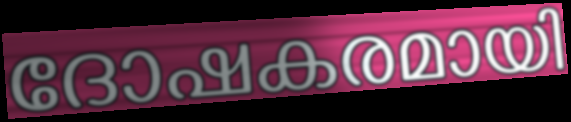
ദോഷകരമായി